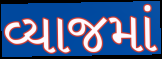
વ્યાજમાં